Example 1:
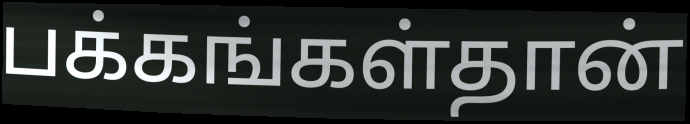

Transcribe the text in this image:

பக்கங்கள்தான்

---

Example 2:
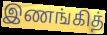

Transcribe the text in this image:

இணங்கித்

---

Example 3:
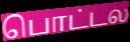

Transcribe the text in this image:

பொட்டல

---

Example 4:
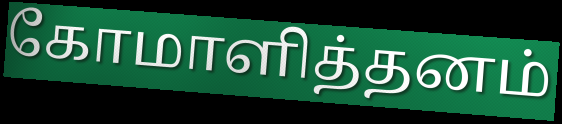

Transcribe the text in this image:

கோமாளித்தனம்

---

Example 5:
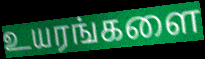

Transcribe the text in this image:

உயரங்களை